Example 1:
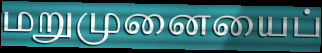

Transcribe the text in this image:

மறுமுனையைப்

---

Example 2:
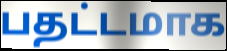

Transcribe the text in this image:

பதட்டமாக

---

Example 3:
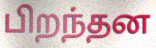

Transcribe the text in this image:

பிறந்தன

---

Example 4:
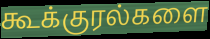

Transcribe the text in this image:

கூக்குரல்களை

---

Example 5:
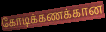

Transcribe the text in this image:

கோடிக்கணக்கான